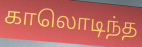
காலொடிந்த